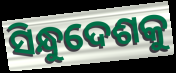
ସିନ୍ଧୁଦେଶକୁ